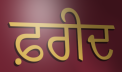
ਫ਼ਰੀਦ